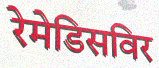
रेमेडिसविर